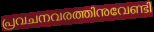
പ്രവചനവരത്തിനുവേണ്ടി